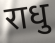
राधु